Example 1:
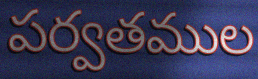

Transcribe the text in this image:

పర్వతముల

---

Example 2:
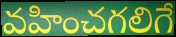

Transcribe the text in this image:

వహించగలిగే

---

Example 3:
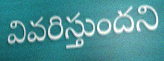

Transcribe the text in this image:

వివరిస్తుందని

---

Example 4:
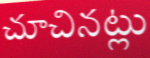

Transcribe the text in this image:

చూచినట్లు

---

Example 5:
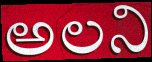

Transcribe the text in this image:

అలని